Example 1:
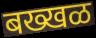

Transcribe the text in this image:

बख्खळ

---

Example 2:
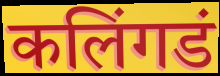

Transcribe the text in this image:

कलिंगडं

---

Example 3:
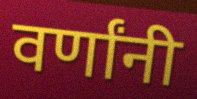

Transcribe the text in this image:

वर्णांनी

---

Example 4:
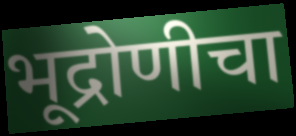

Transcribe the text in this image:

भूद्रोणीचा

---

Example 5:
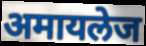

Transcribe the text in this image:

अमायलेज